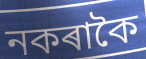
নকৰাকৈ